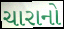
ચારાનો